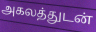
அகலத்துடன்